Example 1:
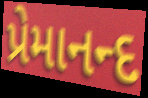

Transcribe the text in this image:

પ્રેમાનન્દ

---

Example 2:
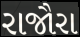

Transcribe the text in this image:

રાજૌરા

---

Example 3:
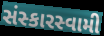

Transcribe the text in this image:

સંસ્કારસ્વામી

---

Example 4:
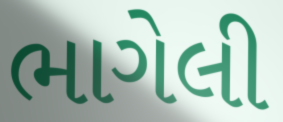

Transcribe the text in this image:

ભાગેલી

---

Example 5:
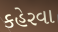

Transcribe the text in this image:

કહેરવા